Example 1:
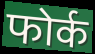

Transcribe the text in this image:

फोर्क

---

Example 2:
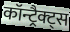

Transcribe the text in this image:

कॉन्‍ट्रैक्‍ट्स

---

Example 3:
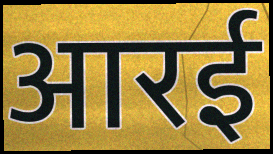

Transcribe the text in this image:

आरई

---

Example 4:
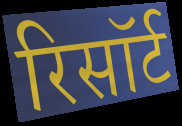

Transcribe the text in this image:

रिसॉर्ट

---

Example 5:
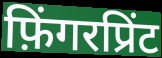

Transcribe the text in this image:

फ़िंगरप्रिंट